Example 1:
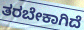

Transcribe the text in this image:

ತರಬೇಕಾಗಿದೆ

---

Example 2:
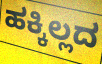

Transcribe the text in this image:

ಹಕ್ಕಿಲ್ಲದ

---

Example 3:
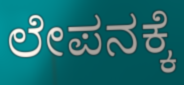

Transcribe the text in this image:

ಲೇಪನಕ್ಕೆ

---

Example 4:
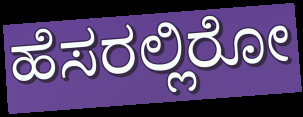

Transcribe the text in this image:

ಹೆಸರಲ್ಲಿರೋ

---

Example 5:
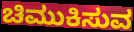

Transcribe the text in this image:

ಚಿಮುಕಿಸುವ